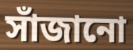
সাঁজানো